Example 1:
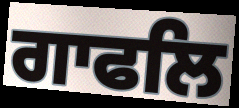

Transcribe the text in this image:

ਗਾਫਲਿ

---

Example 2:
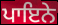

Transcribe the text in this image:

ਪਾਇਨੇ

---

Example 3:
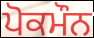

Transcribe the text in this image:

ਪੋਕਮੌਨ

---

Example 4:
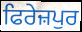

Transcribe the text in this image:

ਫਿਰੇਜ਼ਪੁਰ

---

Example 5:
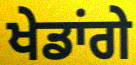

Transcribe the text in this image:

ਖੇਡਾਂਗੇ